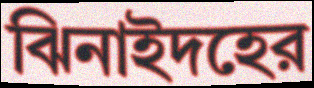
ঝিনাইদহের